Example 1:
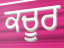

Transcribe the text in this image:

ਕਚੂਰ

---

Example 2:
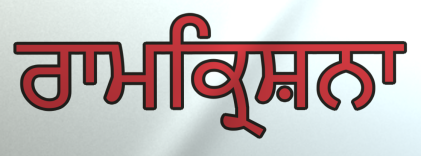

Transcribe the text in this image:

ਰਾਮਕ੍ਰਿਸ਼ਨਾ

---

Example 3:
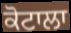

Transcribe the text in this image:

ਕੋਟਾਲਾ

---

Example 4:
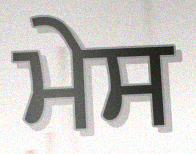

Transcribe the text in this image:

ਮੇਸ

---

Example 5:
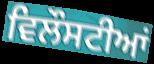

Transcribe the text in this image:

ਵਿਲੌਸਟੀਆਂ